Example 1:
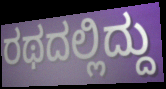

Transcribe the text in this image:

ರಥದಲ್ಲಿದ್ದು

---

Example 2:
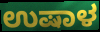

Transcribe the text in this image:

ಉಷಾಳ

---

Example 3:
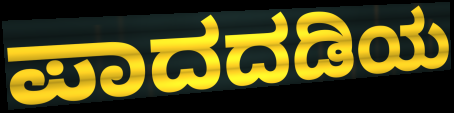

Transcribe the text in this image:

ಪಾದದಡಿಯ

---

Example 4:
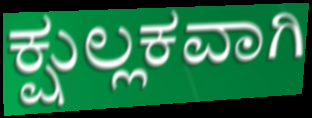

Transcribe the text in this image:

ಕ್ಷುಲ್ಲಕವಾಗಿ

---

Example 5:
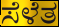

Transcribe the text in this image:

ಸೆಳೆತ